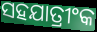
ସହଯାତ୍ରୀଂକ